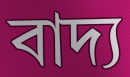
বাদ্য